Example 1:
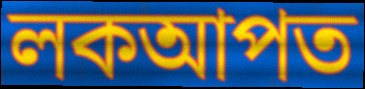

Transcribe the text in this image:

লকআপত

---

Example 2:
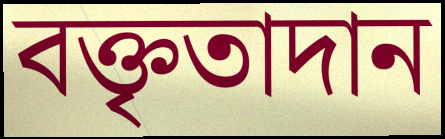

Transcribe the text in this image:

বক্তৃতাদান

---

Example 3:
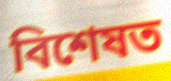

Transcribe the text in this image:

বিশেষত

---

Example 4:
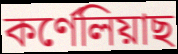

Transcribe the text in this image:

কৰ্ণেলিয়াছ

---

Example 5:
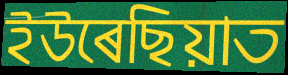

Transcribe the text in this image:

ইউৰেছিয়াত